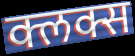
क्लक्स